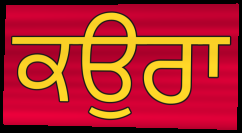
ਕਉਰਾ